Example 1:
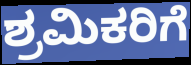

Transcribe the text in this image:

ಶ್ರಮಿಕರಿಗೆ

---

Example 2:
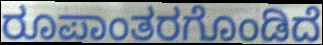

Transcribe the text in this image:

ರೂಪಾಂತರಗೊಂಡಿದೆ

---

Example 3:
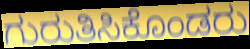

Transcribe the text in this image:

ಗುರುತಿಸಿಕೊಂಡರು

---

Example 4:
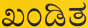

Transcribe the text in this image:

ಖಂಡಿತ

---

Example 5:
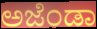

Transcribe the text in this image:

ಅಜೆಂಡಾ